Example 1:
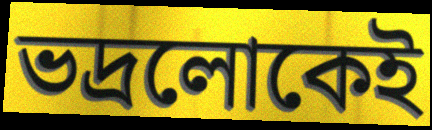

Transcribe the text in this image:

ভদ্রলোকেই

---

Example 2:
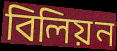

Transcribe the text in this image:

বিলিয়ন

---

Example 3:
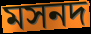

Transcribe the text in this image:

মসনদ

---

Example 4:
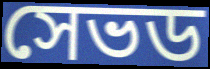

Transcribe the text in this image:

সেভড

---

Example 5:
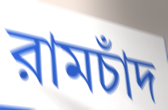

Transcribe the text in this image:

রামচাঁদ